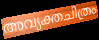
അവ്യക്തചിത്രം